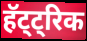
हॅट्ट्रिक